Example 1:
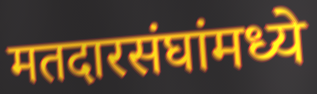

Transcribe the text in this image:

मतदारसंघांमध्ये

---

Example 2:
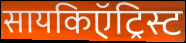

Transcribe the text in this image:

सायकिऍट्रिस्ट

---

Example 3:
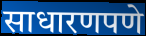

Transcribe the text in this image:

साधारणपणे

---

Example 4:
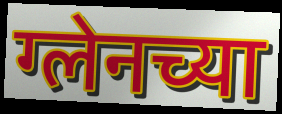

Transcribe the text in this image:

ग्लेनच्या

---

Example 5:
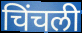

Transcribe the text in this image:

चिंचली